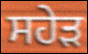
ਸਹੇੜ